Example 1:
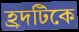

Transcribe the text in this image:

হ্রদটিকে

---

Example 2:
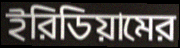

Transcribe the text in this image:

ইরিডিয়ামের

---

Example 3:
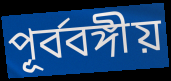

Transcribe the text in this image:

পূর্ববঙ্গীয়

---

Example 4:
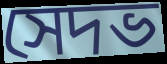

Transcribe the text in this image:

সেদভ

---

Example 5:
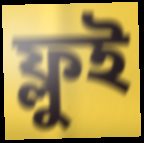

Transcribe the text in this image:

ফ্লুই